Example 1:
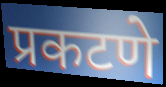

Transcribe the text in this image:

प्रकटणे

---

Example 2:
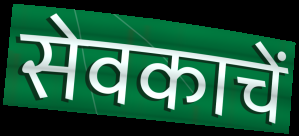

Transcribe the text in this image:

सेवकाचें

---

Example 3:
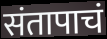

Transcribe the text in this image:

संतापाचं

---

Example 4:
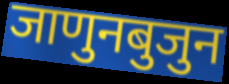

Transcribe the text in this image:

जाणुनबुजुन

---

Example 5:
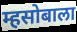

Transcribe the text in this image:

म्हसोबाला